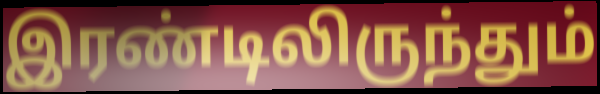
இரண்டிலிருந்தும்